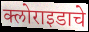
क्लोराइडाचे